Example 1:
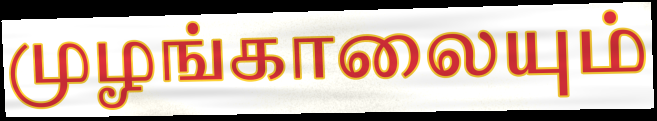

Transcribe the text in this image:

முழங்காலையும்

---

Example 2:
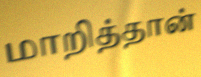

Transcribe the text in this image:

மாறித்தான்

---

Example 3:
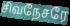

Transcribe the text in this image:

சிவநேசரே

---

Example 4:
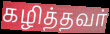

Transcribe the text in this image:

கழித்தவர்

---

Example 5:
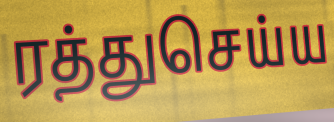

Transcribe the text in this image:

ரத்துசெய்ய